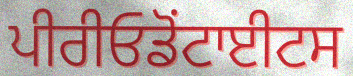
ਪੀਰੀਓਡੋਂਟਾਈਟਸ